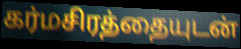
கர்மசிரத்தையுடன்